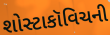
શોસ્ટાકૉવિચની